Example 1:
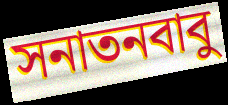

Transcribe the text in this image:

সনাতনবাবু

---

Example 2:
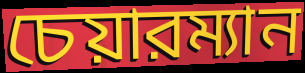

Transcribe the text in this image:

চেয়ারম্যান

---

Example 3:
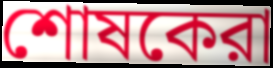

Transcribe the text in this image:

শোষকেরা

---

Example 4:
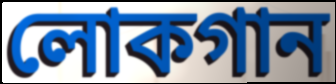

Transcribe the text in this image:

লোকগান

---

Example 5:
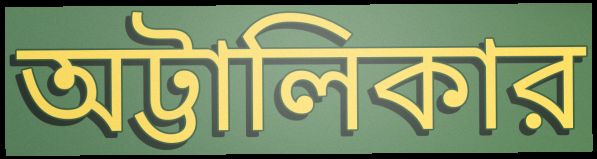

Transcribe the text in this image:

অট্টালিকার